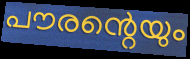
പൗരന്റെയും